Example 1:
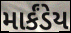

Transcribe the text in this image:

માર્કંડેય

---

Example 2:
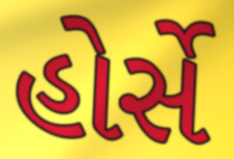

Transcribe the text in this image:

હોર્સે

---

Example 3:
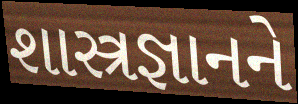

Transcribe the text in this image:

શાસ્ત્રજ્ઞાનને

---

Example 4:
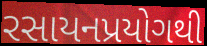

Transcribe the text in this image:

રસાયનપ્રયોગથી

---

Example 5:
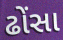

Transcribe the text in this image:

ઢોંસા